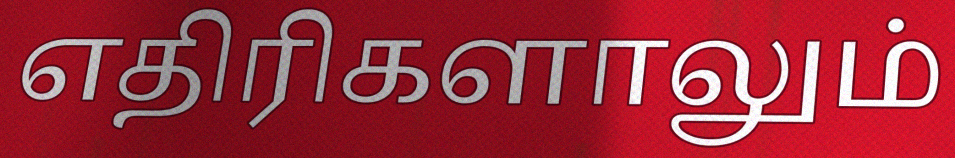
எதிரிகளாலும்